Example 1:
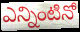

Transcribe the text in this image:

ఎన్నింటినో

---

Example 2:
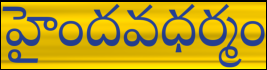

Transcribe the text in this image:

హైందవధర్మం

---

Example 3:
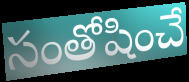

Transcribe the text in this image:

సంతోషించే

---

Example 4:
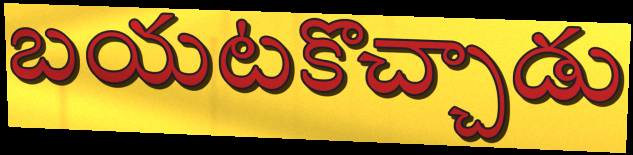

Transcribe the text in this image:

బయటకొచ్చాడు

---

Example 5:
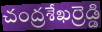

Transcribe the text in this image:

చంద్రశేఖర్రెడ్డి